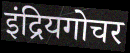
इंद्रियगोचर